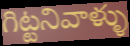
గిట్టనివాళ్ళు